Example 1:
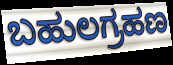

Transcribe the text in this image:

ಬಹುಲಗ್ರಹಣ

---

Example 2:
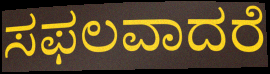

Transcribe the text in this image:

ಸಫಲವಾದರೆ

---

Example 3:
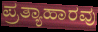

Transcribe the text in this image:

ಪ್ರತ್ಯಾಹಾರವು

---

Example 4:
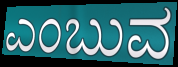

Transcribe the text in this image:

ಎಂಬುವ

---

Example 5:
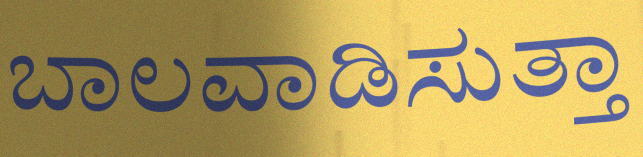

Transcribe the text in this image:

ಬಾಲವಾಡಿಸುತ್ತಾ